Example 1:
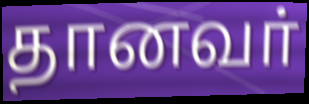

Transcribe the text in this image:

தானவர்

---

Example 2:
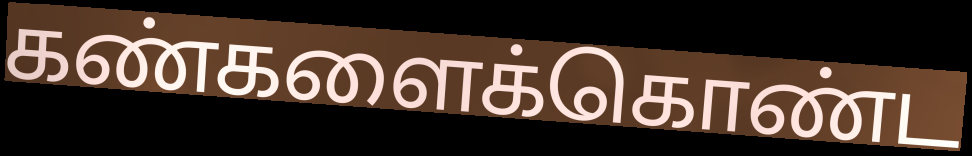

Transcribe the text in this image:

கண்களைக்கொண்ட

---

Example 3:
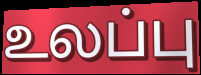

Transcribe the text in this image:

உலப்பு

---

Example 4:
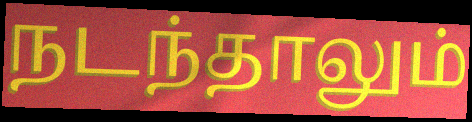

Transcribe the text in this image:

நடந்தாலும்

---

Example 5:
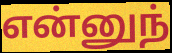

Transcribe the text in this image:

என்னுந்